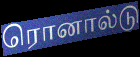
ரொனால்டு